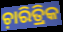
ଚ଼ାରିତ୍ରିକ